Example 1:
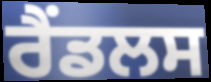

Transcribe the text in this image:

ਰੈਂਡਲਸ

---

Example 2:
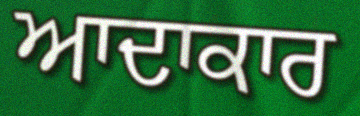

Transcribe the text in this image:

ਆਦਾਕਾਰ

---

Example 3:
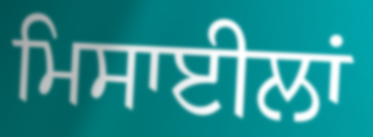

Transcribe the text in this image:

ਮਿਸਾਈਲਾਂ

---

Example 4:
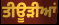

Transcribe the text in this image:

ਤੀਊੜੀਆਂ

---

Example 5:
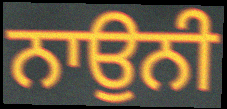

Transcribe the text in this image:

ਨਾਉਨੀ